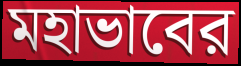
মহাভাবের